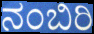
ನಂಬಿರಿ